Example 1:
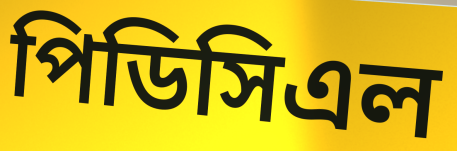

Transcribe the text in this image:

পিডিসিএল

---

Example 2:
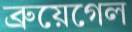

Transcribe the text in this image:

ব্রুয়েগেল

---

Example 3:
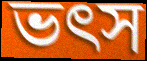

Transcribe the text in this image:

ভৎস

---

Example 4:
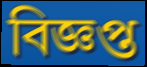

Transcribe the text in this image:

বিজ্ঞপ্ত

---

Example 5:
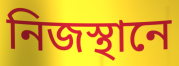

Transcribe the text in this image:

নিজস্থানে